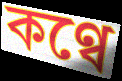
কণ্বে